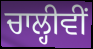
ਚਾਲ੍ਹੀਵੀਂ